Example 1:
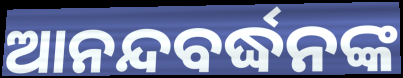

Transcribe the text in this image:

ଆନନ୍ଦବର୍ଦ୍ଧନଙ୍କ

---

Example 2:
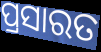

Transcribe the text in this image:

ପ୍ରସାରତ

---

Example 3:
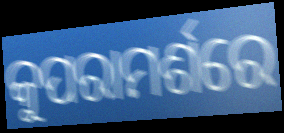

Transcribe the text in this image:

କୁପରାମର୍ଶରେ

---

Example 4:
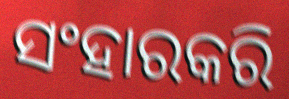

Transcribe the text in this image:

ସଂହାରକରି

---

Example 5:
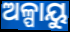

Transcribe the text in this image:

ଅଳ୍ପାୟୁ